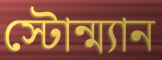
স্টোন্ম্যান